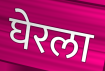
घेरला